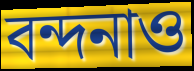
বন্দনাও